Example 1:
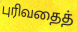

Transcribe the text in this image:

புரிவதைத்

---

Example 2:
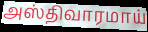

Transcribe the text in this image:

அஸ்திவாரமாய்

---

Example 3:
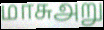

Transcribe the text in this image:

மாசுஅறு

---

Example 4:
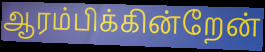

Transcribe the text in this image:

ஆரம்பிக்கின்றேன்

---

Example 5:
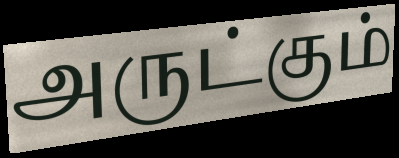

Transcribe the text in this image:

அருட்கும்